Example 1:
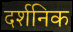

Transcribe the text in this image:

दर्शनिक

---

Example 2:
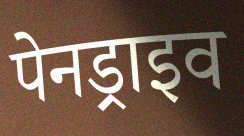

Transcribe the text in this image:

पेनड्राइव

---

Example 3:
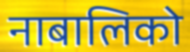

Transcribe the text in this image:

नाबालिको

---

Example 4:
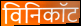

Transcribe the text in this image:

विनिकॉट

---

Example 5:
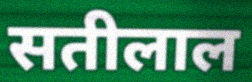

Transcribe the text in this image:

सतीलाल